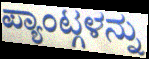
ಪ್ಯಾಂಟ್ಗಳನ್ನು